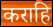
कराहि